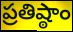
ప్రతిష్ఠాం